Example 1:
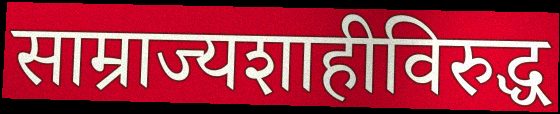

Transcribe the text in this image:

साम्राज्यशाहीविरुद्ध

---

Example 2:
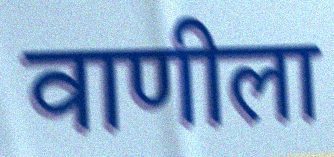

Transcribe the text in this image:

वाणीला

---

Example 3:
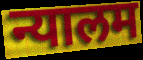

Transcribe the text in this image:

न्यालम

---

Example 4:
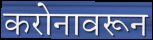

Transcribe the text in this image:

करोनावरून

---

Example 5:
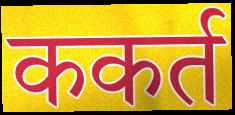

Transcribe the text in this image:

ककर्त